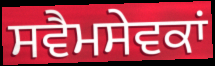
ਸਵੈਮਸੇਵਕਾਂ